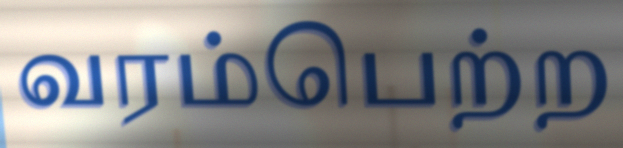
வரம்பெற்ற